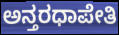
ಅನ್ತರಧಾಪೇತಿ